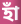
হাঁ